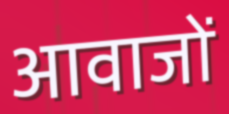
आवाजों